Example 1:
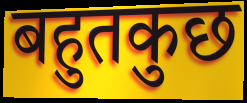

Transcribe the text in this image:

बहुतकुछ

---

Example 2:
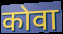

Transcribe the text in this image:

कोवा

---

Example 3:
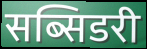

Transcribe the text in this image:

सब्सिडरी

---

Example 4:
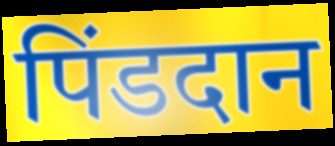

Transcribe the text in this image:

पिंडदान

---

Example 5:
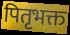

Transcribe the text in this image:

पितृभक्त